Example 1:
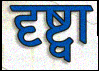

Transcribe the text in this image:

दृष्ट्वा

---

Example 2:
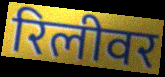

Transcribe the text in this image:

रिलीवर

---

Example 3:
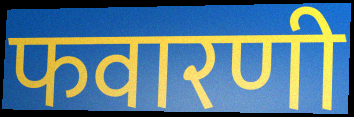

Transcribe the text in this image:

फवारणी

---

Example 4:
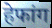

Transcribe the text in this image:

हेफांग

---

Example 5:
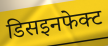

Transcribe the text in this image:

डिसइनफेक्ट